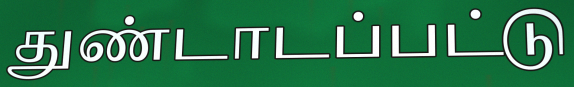
துண்டாடப்பட்டு